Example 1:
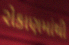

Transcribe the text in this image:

રોકાણમાંથી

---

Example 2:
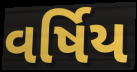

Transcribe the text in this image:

વર્ષિય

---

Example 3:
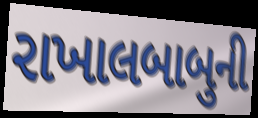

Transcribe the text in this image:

રાખાલબાબુની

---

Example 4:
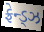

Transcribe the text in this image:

ફ્રેન્ડ્ઝ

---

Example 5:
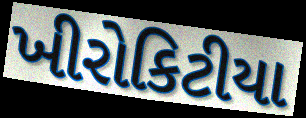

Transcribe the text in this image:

ખીરોકિટીયા